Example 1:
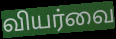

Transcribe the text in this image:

வியர்வை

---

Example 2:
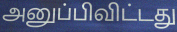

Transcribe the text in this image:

அனுப்பிவிட்டது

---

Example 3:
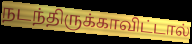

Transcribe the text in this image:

நடந்திருக்காவிட்டால்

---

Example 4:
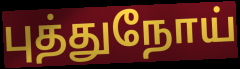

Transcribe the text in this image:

புத்துநோய்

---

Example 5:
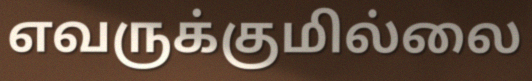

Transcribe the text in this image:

எவருக்குமில்லை